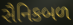
સૈનિકબળ